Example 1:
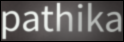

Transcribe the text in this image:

pathika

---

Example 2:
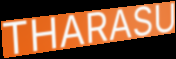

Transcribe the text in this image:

THARASU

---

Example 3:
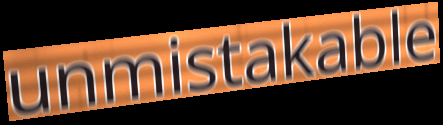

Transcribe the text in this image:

unmistakable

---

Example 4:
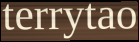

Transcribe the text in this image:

terrytao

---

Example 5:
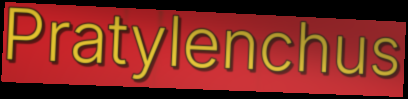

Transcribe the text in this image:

Pratylenchus